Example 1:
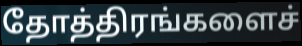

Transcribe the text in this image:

தோத்திரங்களைச்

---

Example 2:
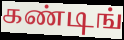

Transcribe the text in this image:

கண்டிங்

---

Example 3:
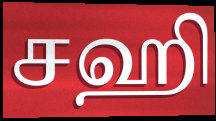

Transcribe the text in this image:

சஹி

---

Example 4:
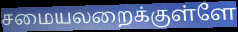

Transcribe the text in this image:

சமையலறைக்குள்ளே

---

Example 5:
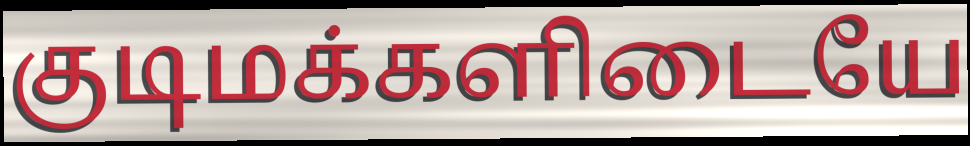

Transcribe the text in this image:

குடிமக்களிடையே